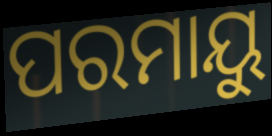
ପରମାୟୁ